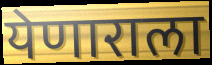
येणाराला